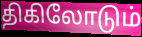
திகிலோடும்